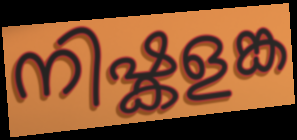
നിഷ്കളങ്ക